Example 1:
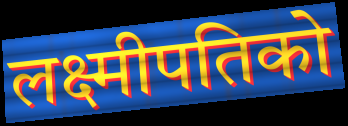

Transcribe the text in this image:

लक्ष्मीपतिको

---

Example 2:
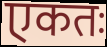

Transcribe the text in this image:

एकतः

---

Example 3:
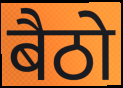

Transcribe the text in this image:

बैठो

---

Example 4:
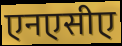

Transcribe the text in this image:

एनएसीए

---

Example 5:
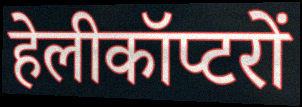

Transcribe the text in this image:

हेलीकॉप्टरों